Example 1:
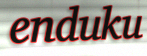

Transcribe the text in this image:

enduku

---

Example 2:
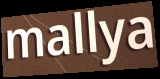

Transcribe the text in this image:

mallya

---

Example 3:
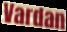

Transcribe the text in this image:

Vardan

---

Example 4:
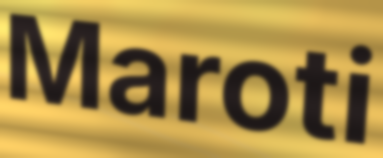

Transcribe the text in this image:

Maroti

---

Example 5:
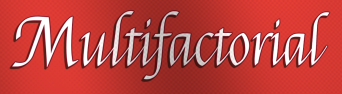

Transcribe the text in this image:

Multifactorial